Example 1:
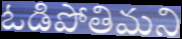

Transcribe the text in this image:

ఓడిపోతిమని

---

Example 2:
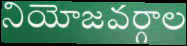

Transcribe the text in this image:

నియోజవర్గాల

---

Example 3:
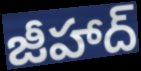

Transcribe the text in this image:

జీహాద్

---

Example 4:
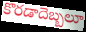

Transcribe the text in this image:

కొరడాదెబ్బలూ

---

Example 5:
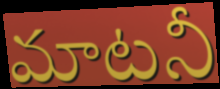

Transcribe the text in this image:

మాటనీ